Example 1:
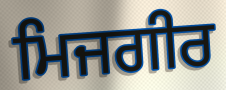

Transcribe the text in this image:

ਮਿਜਗੀਰ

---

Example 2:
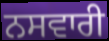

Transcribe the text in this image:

ਨਸਵਾਰੀ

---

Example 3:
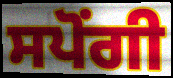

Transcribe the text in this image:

ਸਪੋਂਗੀ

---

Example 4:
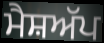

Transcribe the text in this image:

ਮੈਸ਼ਅੱਪ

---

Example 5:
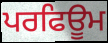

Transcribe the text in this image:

ਪਰਫਿਊਮ